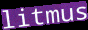
litmus